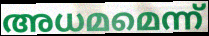
അധമമെന്ന്